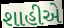
શાહીએ